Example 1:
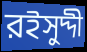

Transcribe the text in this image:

রইসুদ্দী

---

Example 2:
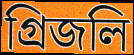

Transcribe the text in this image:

গ্রিজলি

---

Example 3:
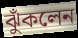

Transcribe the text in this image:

ঝুঁকলেন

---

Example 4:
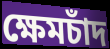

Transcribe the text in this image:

ক্ষেমচাঁদ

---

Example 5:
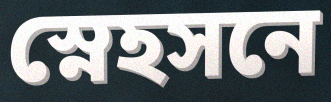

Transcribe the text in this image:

স্নেহসনে